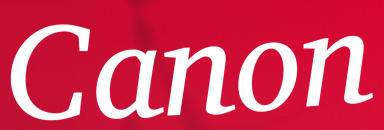
Canon